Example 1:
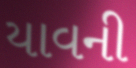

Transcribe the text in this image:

યાવની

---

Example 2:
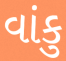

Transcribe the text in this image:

વાંકુ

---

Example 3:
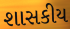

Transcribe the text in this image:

શાસકીય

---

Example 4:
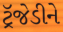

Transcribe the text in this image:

ટ્રૅજેડીને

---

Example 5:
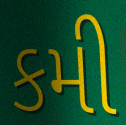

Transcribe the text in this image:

કમી